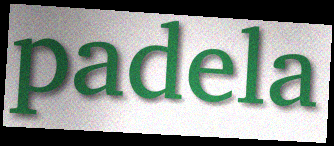
padela